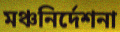
মঞ্চনির্দেশনা